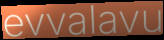
evvalavu